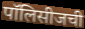
पॉलिसीजची